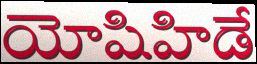
యోషిహిడే